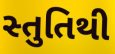
સ્તુતિથી